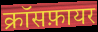
क्रॉसफ़ायर